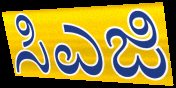
ಸಿಎಜಿ